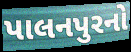
પાલનપુરનો